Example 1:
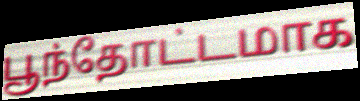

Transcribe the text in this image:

பூந்தோட்டமாக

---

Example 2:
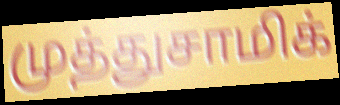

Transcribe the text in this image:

முத்துசாமிக்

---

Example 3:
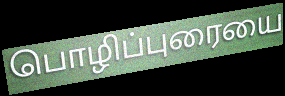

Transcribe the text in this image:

பொழிப்புரையை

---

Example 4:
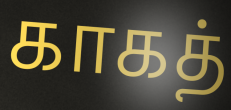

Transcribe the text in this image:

காகத்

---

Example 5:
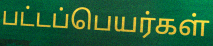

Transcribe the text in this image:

பட்டப்பெயர்கள்